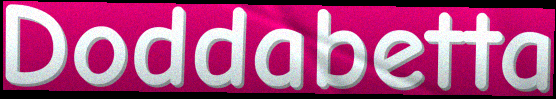
Doddabetta